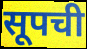
सूपची